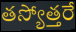
తస్యోత్తరే